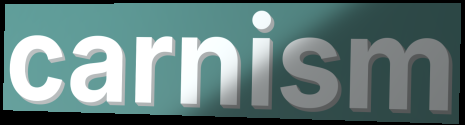
carnism